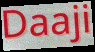
Daaji